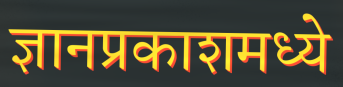
ज्ञानप्रकाशमध्ये